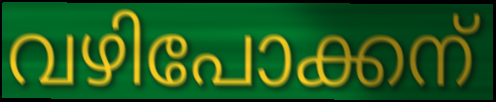
വഴിപോക്കന്